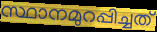
സ്ഥാനമുറപ്പിച്ചത്